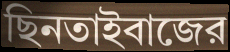
ছিনতাইবাজের